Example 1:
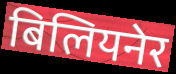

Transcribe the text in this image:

बिलियनेर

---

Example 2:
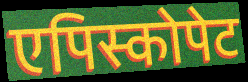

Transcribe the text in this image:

एपिस्कोपेट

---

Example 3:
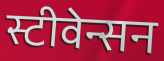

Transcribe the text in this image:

स्टीवेन्सन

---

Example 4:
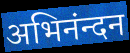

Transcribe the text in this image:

अभिनंन्दन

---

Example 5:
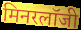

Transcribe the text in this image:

मिनरलॉजी